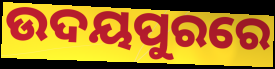
ଉଦୟପୁରରେ